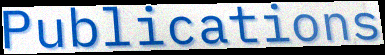
Publications